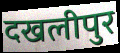
दखलीपुर